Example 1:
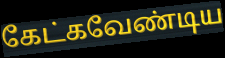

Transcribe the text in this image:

கேட்கவேண்டிய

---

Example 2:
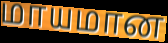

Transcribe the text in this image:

மாயமான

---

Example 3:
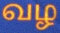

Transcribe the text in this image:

வழ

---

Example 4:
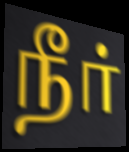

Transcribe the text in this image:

நீர்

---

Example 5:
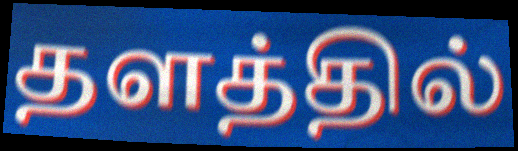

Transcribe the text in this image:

தளத்தில்